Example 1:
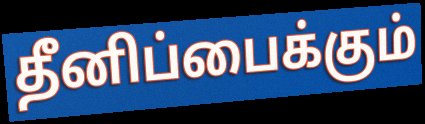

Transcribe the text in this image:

தீனிப்பைக்கும்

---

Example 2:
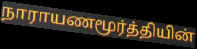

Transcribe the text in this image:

நாராயணமூர்த்தியின்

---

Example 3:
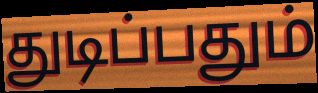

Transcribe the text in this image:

துடிப்பதும்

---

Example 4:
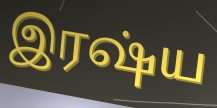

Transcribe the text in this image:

இரஷ்ய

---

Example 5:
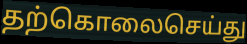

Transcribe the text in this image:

தற்கொலைசெய்து